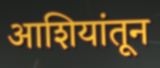
आशियांतून